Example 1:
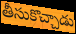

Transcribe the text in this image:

తీసుకొచ్చాడు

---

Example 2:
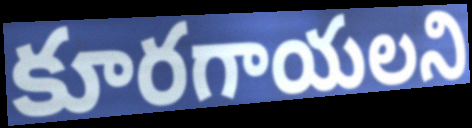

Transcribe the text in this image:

కూరగాయలని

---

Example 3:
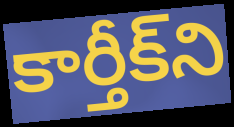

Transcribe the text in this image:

కార్తీక్‌ని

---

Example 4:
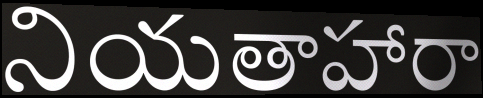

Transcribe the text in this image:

నియతాహారా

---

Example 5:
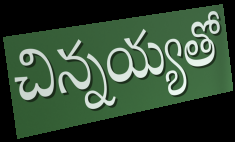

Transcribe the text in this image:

చిన్నయ్యతో